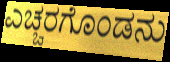
ಎಚ್ಚರಗೊಂಡನು